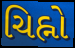
ચિહ્નો